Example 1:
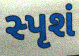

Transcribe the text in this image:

સ્પૃશં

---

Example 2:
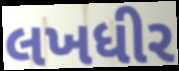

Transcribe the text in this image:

લખધીર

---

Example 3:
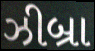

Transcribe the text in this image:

ઝીબ્રા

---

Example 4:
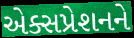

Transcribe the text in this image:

એક્સપ્રેશનને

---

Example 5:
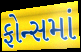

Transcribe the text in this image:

ફોન્સમાં